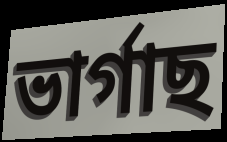
ভাৰ্গাছ